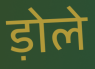
ड़ोले